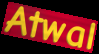
Atwal